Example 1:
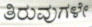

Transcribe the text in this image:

ತಿರುವುಗಳೇ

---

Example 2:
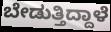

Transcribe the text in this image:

ಬೇಡುತ್ತಿದ್ದಾಳೆ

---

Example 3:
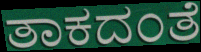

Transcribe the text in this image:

ತಾಕದಂತೆ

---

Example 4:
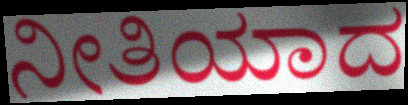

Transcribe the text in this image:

ನೀತಿಯಾದ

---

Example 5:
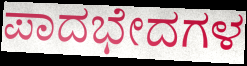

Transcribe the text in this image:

ಪಾದಭೇದಗಳ